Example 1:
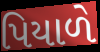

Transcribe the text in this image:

પિયાળે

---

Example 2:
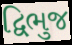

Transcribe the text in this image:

દ્વિભુજ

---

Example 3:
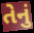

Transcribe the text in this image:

તેનું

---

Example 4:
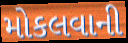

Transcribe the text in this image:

મોકલવાની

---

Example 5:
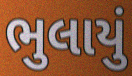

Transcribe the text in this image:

ભુલાયું